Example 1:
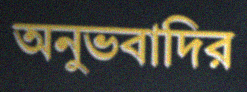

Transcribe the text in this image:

অনুভবাদির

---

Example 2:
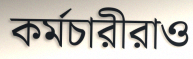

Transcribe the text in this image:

কর্মচারীরাও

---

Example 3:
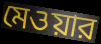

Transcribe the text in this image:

মেওয়ার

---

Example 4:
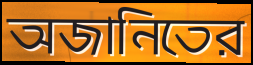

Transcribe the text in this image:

অজানিতের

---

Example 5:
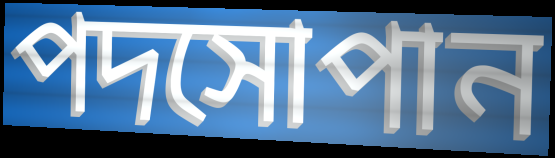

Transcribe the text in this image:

পদসোপান